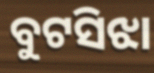
ବୁଟସିଝା